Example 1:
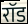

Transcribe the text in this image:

रॉड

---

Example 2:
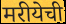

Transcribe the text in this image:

मरीयेची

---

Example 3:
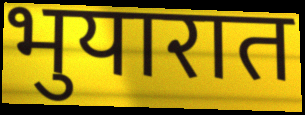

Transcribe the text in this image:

भुयारात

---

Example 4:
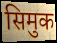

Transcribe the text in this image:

सिमुक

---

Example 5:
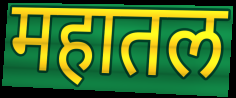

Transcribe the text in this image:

महातल